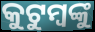
କୁଟୁମ୍ବଙ୍କୁ